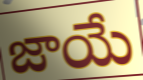
జాయే